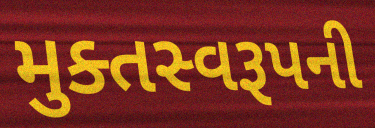
મુક્તસ્વરૂપની